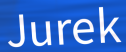
Jurek